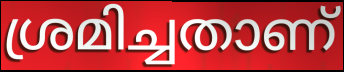
ശ്രമിച്ചതാണ്